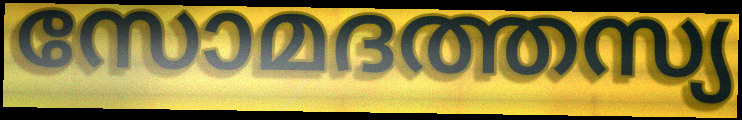
സോമദത്തസ്യ